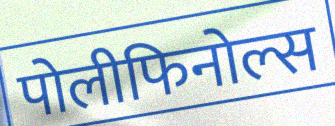
पोलीफिनोल्स